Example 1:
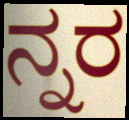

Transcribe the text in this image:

ನ್ನರ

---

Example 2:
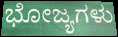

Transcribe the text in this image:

ಭೋಜ್ಯಗಳು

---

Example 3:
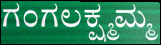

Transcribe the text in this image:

ಗಂಗಲಕ್ಷ್ಮಮ್ಮ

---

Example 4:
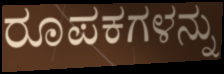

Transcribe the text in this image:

ರೂಪಕಗಳನ್ನು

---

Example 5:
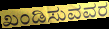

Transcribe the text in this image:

ಖಂಡಿಸುವವರ